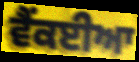
ਵੈਂਕਈਆ